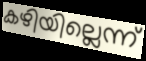
കഴിയില്ലെന്ന്